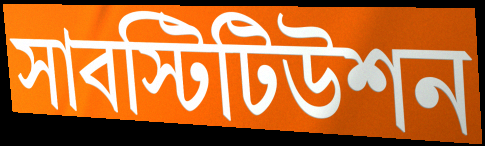
সাবস্টিটিউশন